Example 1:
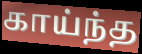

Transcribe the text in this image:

காய்ந்த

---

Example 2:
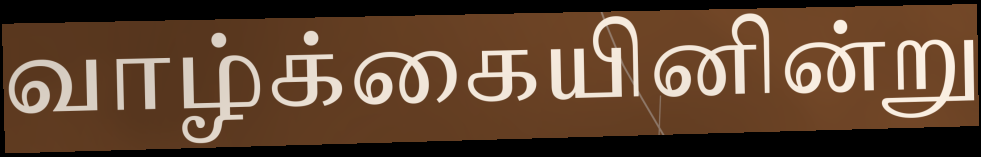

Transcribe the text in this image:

வாழ்க்கையினின்று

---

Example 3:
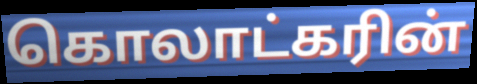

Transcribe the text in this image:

கொலாட்கரின்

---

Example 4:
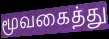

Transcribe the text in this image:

மூவகைத்து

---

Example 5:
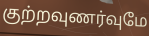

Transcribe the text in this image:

குற்றவுணர்வுமே